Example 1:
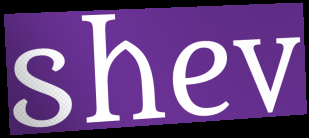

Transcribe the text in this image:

shev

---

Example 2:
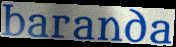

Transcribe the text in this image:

baranda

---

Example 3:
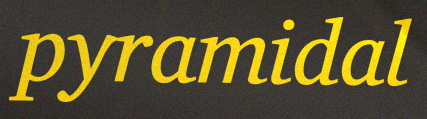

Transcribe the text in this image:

pyramidal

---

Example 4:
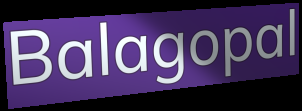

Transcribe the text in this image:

Balagopal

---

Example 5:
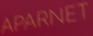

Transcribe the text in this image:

APARNET